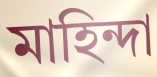
মাহিন্দা